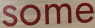
some